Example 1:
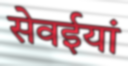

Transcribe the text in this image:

सेवईयां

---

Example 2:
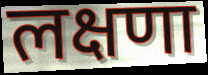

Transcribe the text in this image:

लक्षणा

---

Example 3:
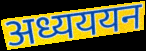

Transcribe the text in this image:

अध्यययन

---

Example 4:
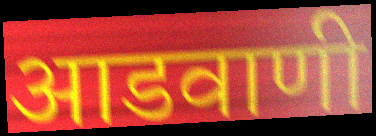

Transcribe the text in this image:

आडवाणी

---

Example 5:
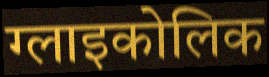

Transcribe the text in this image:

ग्लाइकोलिक